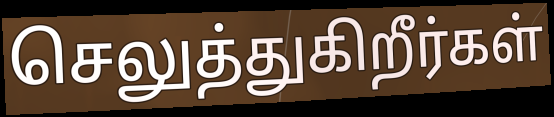
செலுத்துகிறீர்கள்